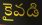
కైవడి